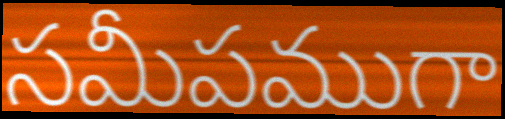
సమీపముగా